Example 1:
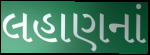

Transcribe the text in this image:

લહાણનાં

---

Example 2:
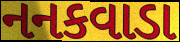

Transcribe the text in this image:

નનકવાડા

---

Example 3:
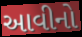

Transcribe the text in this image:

આવીનો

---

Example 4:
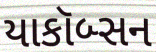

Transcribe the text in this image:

યાકૉબ્સન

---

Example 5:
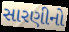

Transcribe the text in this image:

સારણીનો